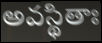
అవస్థితాః